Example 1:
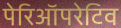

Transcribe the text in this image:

पेरिऑपरेटिव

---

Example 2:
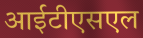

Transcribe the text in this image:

आईटीएसएल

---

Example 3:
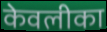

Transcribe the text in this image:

केवलीका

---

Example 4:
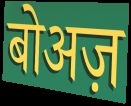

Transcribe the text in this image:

बोअज़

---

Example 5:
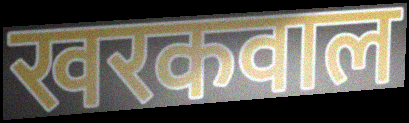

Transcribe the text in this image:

खरकवाल